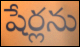
షేర్లను